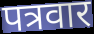
पत्रवार